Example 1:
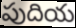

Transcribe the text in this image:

పుదియ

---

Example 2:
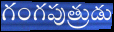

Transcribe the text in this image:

గంగపుత్రుడు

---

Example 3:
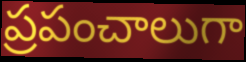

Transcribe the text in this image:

ప్రపంచాలుగా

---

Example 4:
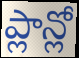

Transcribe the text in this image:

ప్లాన్లో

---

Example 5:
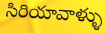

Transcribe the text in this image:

సిరియావాళ్ళు